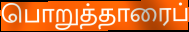
பொறுத்தாரைப்